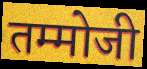
तम्मोजी